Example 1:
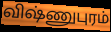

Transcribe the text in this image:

விஷ்ணுபுரம்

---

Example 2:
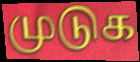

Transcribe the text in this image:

முடுக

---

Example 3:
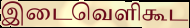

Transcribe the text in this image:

இடைவெளிகூட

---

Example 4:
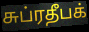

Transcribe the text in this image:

சுப்ரதீபக்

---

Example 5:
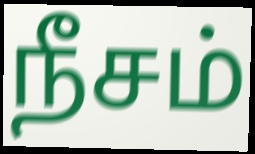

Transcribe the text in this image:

நீசம்